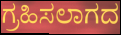
ಗ್ರಹಿಸಲಾಗದ